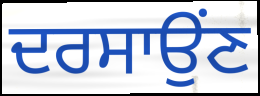
ਦਰਸਾਉਂਣ